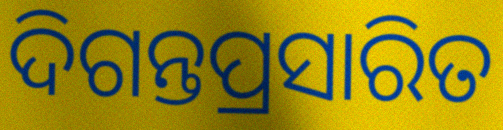
ଦିଗନ୍ତପ୍ରସାରିତ